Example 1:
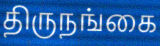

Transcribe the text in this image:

திருநங்கை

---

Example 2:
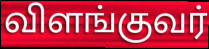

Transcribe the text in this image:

விளங்குவர்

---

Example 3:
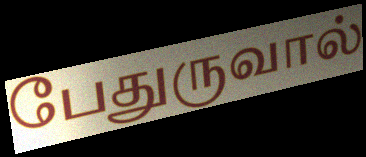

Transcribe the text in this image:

பேதுருவால்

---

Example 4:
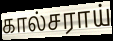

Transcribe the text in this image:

கால்சராய்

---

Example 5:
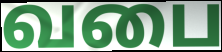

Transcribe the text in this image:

வபை